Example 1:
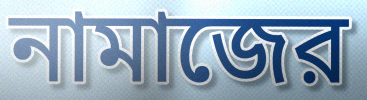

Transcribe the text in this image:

নামাজের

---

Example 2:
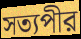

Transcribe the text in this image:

সত্যপীর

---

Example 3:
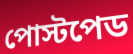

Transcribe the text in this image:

পোস্টপেড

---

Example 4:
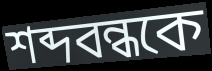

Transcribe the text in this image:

শব্দবন্ধকে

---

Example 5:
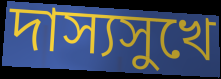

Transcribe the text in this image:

দাস্যসুখে